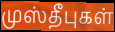
முஸ்தீபுகள்